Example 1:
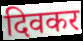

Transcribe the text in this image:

दिवकर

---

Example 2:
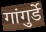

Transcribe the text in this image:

गांगुर्डे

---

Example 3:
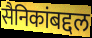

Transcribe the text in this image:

सैनिकांबद्दल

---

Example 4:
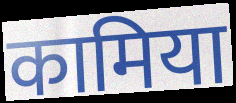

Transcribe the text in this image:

कामिया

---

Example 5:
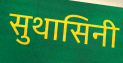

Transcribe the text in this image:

सुथासिनी